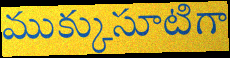
ముక్కుసూటిగా